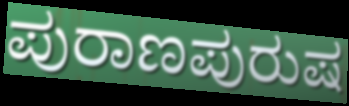
ಪುರಾಣಪುರುಷ